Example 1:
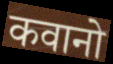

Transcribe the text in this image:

कवानो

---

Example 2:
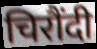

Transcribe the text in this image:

चिरौंदी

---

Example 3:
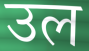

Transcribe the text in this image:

उल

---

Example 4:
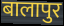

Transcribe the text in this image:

बालापुर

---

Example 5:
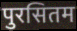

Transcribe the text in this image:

पुरसितम